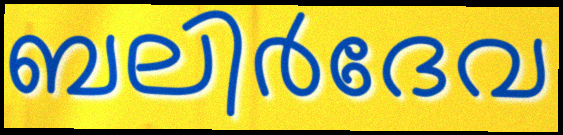
ബലിർദേവ